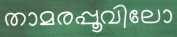
താമരപ്പൂവിലോ